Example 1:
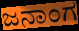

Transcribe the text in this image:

ಜನಾಂಗ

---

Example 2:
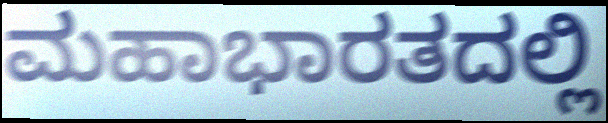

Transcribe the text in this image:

ಮಹಾಭಾರತದಲ್ಲಿ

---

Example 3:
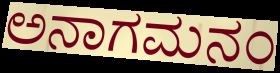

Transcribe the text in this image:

ಅನಾಗಮನಂ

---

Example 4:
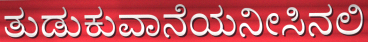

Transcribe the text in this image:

ತುಡುಕುವಾನೆಯನೀಸಿನಲಿ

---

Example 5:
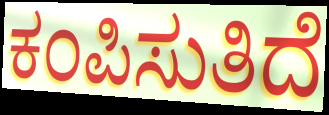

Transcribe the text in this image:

ಕಂಪಿಸುತಿದೆ